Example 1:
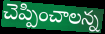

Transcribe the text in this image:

చెప్పించాలన్న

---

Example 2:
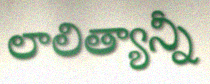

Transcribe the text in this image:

లాలిత్యాన్నీ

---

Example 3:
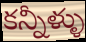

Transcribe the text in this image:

కన్నీళ్ళు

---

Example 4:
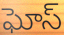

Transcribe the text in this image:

ఘోస్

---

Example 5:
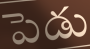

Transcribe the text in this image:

పెడు